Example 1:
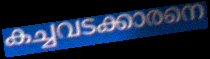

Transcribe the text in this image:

കച്ചവടക്കാരനെ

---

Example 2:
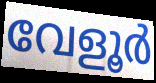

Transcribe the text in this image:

വേളൂർ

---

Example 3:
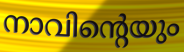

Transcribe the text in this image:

നാവിന്റെയും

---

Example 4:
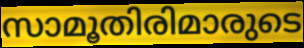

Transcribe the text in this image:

സാമൂതിരിമാരുടെ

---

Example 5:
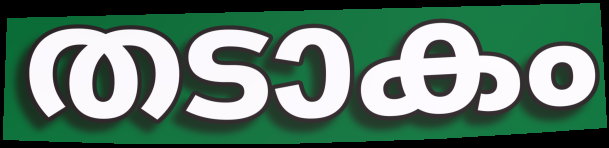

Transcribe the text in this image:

തടാകം